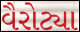
વૈરોટ્યા